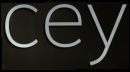
cey